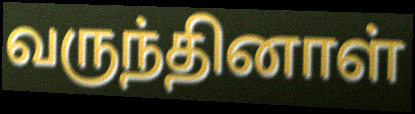
வருந்தினாள்